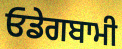
ਓਡੇਗਬਾਮੀ